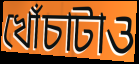
খোঁচাটাও